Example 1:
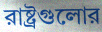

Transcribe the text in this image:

রাষ্ট্রগুলোর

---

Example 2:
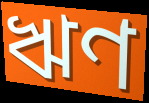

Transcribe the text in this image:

ঋণ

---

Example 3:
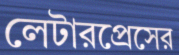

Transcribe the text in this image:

লেটারপ্রেসের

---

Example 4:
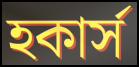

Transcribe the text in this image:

হকার্স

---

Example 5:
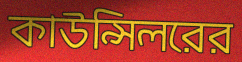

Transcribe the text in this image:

কাউন্সিলরের